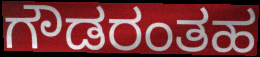
ಗೌಡರಂತಹ